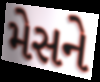
મેસને